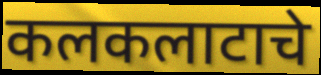
कलकलाटाचे